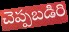
చెప్పబడిరి